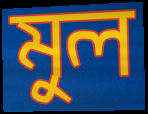
মুল